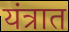
यंत्रात